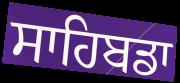
ਸਾਹਿਬਡਾ